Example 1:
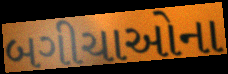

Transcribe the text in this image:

બગીચાઓના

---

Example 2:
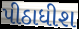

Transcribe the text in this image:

પીઠાધીશ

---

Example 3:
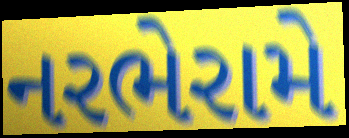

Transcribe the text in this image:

નરભેરામે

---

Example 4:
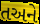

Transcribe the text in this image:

તઅને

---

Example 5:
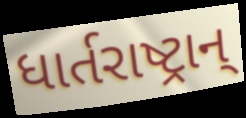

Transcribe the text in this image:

ધાર્તરાષ્ટ્રાન્